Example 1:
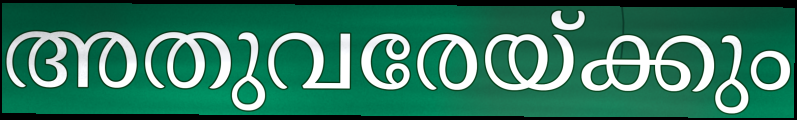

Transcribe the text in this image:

അതുവരേയ്ക്കും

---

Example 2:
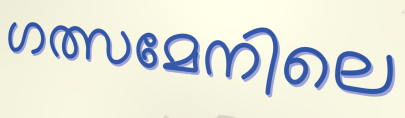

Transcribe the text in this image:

ഗത്സമേനിലെ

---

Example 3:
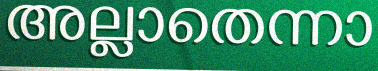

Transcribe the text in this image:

അല്ലാതെന്നാ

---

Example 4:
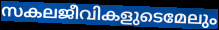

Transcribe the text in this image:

സകലജീവികളുടെമേലും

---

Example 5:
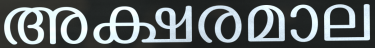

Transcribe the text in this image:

അക്ഷരമാല